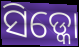
ସିଡ୍କୋ